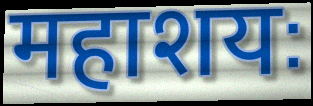
महाशयः